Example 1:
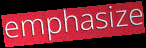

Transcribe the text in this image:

emphasize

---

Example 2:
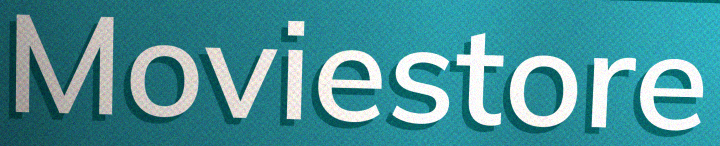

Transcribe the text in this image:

Moviestore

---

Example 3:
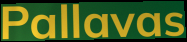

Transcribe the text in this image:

Pallavas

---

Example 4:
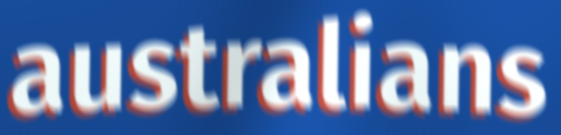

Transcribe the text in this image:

australians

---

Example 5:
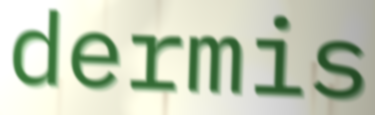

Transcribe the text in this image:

dermis